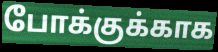
போக்குக்காக